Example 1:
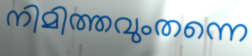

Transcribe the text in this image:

നിമിത്തവുംതന്നെ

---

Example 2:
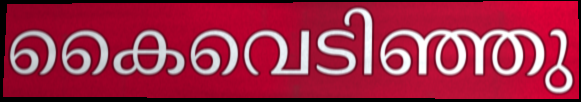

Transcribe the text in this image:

കൈവെടിഞ്ഞു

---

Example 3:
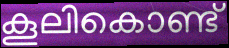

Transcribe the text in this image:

കൂലികൊണ്ട്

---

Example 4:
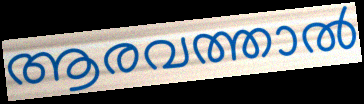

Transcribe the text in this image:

ആരവത്താൽ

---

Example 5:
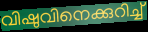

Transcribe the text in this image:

വിഷുവിനെക്കുറിച്ച്